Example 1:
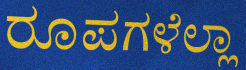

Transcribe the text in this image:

ರೂಪಗಳೆಲ್ಲಾ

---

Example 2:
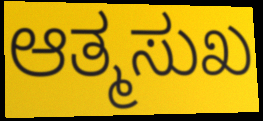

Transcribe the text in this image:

ಆತ್ಮಸುಖ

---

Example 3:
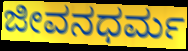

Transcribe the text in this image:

ಜೀವನಧರ್ಮ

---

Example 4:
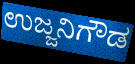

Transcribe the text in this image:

ಉಜ್ಜನಿಗೌಡ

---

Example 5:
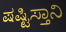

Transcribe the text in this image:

ಷಷ್ಟಿಸ್ತಾನಿ